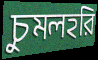
চুমলহরি